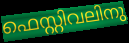
ഫെസ്റ്റിവലിനു